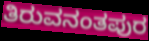
ತಿರುವನಂತಪುರ